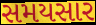
સમયસાર